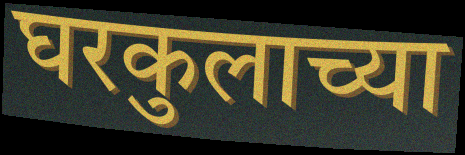
घरकुलाच्या